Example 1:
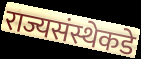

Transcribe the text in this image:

राज्यसंस्थेकडे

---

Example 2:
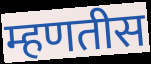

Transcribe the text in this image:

म्हणतीस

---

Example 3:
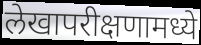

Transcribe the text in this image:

लेखापरीक्षणामध्ये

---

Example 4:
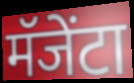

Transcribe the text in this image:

मॅजेंटा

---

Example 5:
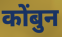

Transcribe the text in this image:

कोंबुन